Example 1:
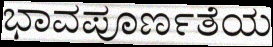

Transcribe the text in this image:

ಭಾವಪೂರ್ಣತೆಯ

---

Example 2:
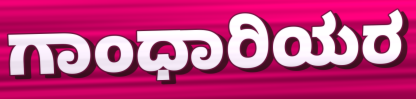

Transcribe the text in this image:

ಗಾಂಧಾರಿಯರ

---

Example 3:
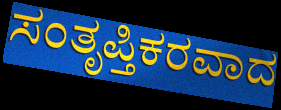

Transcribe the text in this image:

ಸಂತೃಪ್ತಿಕರವಾದ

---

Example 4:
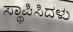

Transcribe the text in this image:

ಸ್ಥಾಪಿಸಿದಳು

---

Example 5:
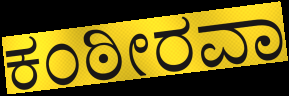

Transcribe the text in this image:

ಕಂಠೀರವಾ